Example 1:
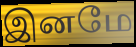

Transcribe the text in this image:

இனமே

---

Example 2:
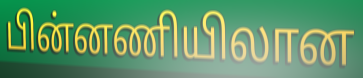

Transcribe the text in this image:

பின்னணியிலான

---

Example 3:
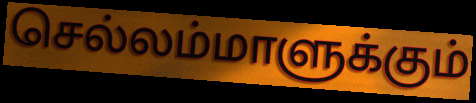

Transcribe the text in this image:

செல்லம்மாளுக்கும்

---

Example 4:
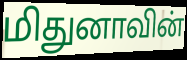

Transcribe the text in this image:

மிதுனாவின்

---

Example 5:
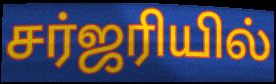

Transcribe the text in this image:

சர்ஜரியில்